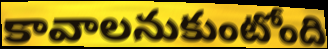
కావాలనుకుంటోంది